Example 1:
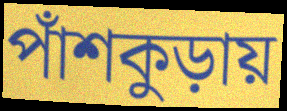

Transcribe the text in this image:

পাঁশকুড়ায়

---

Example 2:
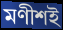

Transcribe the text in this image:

মণীশই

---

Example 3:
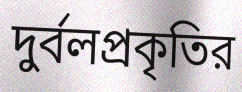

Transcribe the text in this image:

দুর্বলপ্রকৃতির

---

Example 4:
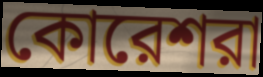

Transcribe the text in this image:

কোরেশরা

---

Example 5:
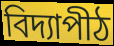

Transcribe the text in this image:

বিদ্যাপীঠ